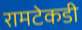
रामटेकडी